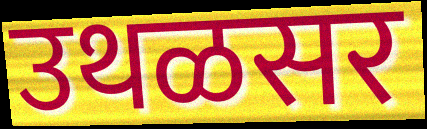
उथळसर